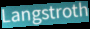
Langstroth